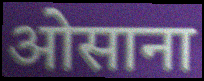
ओसाना